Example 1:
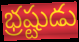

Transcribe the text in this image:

భ్రష్టుడు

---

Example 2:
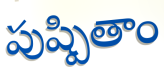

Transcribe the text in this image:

పుష్పితాం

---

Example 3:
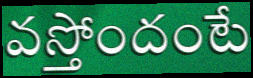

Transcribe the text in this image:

వస్తోందంటే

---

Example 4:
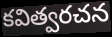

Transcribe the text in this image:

కవిత్వరచన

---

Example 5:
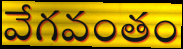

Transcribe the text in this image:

వేగవంతం